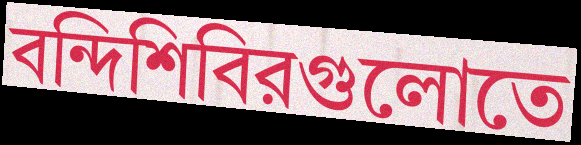
বন্দিশিবিরগুলোতে